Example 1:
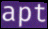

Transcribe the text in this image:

apt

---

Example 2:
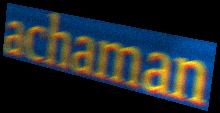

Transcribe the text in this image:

achaman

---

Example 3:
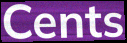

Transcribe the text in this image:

Cents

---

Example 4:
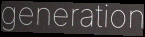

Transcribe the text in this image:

generation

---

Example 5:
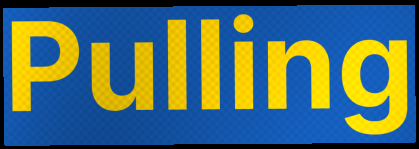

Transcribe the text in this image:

Pulling